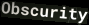
Obscurity